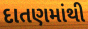
દાતણમાંથી